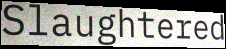
Slaughtered